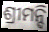
ଶ୍ରୀମନ୍ଦି